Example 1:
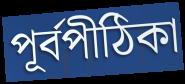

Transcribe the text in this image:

পূর্বপীঠিকা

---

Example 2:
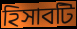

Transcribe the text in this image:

হিসাবটি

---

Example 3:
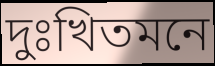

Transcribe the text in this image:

দুঃখিতমনে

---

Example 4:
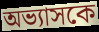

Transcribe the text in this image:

অভ্যাসকে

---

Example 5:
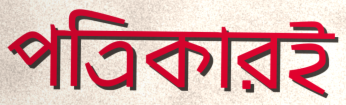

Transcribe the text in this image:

পত্রিকারই